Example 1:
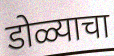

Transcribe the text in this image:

डोळ्याचा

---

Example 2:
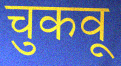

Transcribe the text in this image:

चुकवू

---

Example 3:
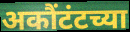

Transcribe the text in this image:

अकौंटंटच्या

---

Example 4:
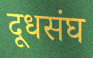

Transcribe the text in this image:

दूधसंघ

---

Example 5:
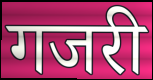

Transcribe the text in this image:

गजरी